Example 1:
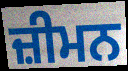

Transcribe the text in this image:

ਜ਼ੀਮਨ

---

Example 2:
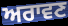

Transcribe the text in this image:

ਅਰਾਵਣ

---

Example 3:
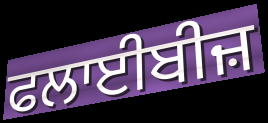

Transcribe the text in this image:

ਫਲਾਈਬੀਜ਼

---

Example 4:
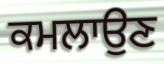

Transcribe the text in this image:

ਕਮਲਾਉਣ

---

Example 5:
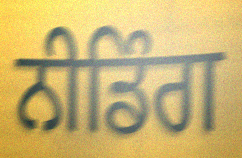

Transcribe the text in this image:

ਨੀਡਿੰਗ